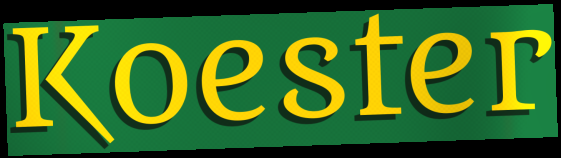
Koester